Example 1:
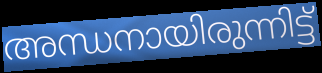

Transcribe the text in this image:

അന്ധനായിരുന്നിട്ട്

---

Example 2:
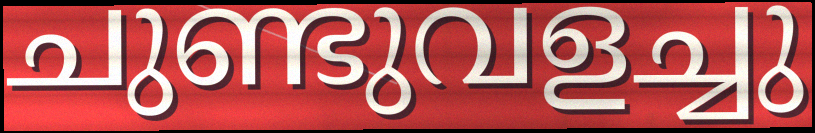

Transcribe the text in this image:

ചുണ്ടുവളച്ചു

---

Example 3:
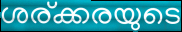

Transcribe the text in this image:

ശര്ക്കരയുടെ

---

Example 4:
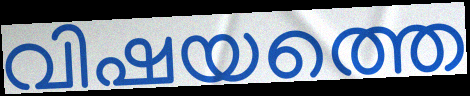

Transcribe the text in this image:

വിഷയത്തെ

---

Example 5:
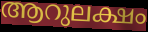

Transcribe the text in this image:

ആറുലക്ഷം